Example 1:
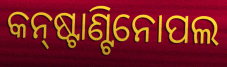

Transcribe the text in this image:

କନ୍‌ଷ୍ଟାଣ୍ଟିନୋପଲ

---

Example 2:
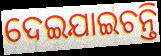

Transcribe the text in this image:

ଦେଇଯାଇଚନ୍ତି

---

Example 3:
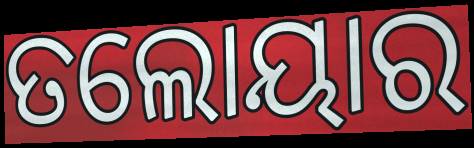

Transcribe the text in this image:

ତଲୋୟାର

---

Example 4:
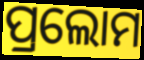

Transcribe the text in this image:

ପ୍ରଲୋମ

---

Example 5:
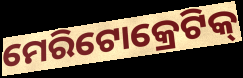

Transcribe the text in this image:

ମେରିଟୋକ୍ରେଟିକ୍